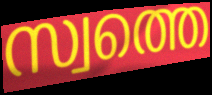
സ്വത്തെ